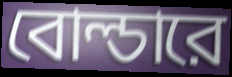
বোল্ডারে